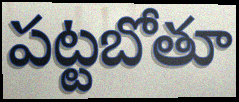
పట్టబోతూ